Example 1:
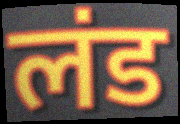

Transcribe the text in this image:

लंड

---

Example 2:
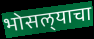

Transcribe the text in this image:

भोसल्याचा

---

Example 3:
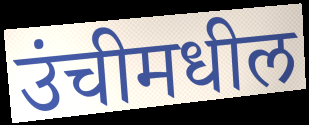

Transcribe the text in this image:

उंचीमधील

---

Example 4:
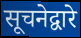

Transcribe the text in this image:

सूचनेद्वारे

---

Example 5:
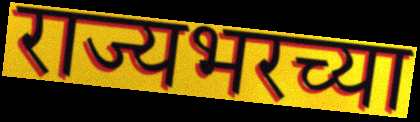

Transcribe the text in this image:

राज्यभरच्या